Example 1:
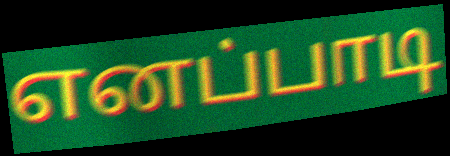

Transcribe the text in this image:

எனப்பாடி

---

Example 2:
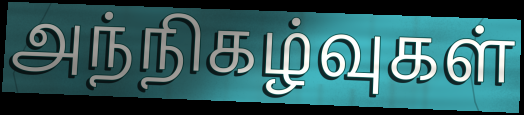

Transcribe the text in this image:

அந்நிகழ்வுகள்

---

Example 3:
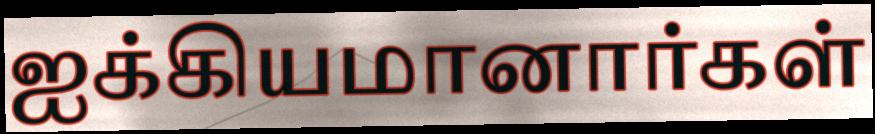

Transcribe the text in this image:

ஐக்கியமானார்கள்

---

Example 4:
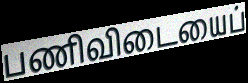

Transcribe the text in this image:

பணிவிடையைப்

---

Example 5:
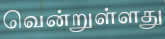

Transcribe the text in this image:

வென்றுள்ளது